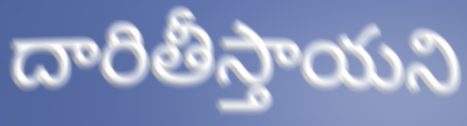
దారితీస్తాయని